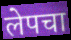
लेपचा